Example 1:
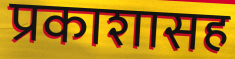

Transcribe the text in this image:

प्रकाशासह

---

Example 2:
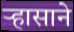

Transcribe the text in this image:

ऱ्हासाने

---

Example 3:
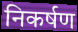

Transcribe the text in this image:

निकर्षण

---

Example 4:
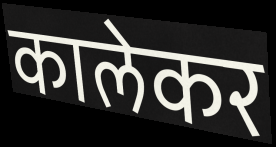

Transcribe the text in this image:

कालेकर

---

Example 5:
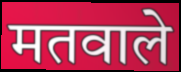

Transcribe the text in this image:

मतवाले